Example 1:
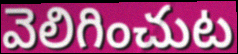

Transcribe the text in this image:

వెలిగించుట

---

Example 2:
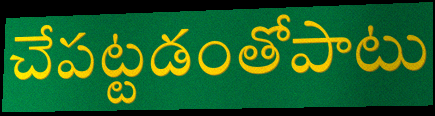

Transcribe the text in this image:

చేపట్టడంతోపాటు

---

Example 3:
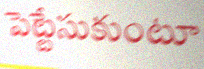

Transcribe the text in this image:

పెట్టేసుకుంటూ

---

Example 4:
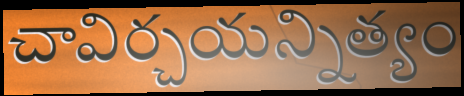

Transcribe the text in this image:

చావిర్చయన్నిత్యం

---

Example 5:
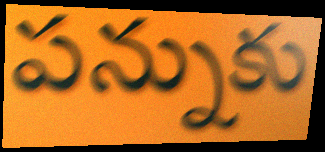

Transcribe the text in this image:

పన్నుకు